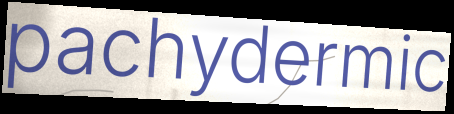
pachydermic